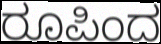
ರೂಪಿಂದ